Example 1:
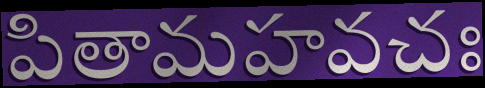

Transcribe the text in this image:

పితామహవచః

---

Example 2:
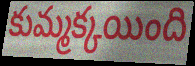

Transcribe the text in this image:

కుమ్మక్కయింది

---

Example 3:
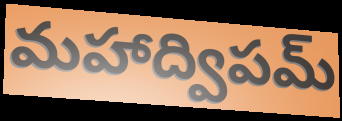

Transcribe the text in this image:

మహాద్విపమ్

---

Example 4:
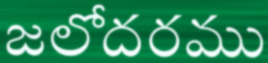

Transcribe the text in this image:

జలోదరము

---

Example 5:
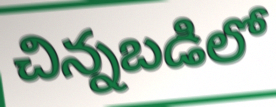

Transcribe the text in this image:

చిన్నబడిలో